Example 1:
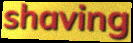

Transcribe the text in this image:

shaving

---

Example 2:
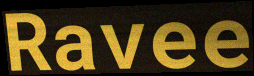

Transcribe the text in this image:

Ravee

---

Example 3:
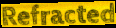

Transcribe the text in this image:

Refracted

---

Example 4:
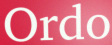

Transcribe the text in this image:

Ordo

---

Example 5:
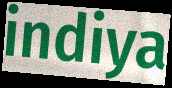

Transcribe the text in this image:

indiya